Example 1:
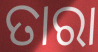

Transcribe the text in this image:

ତାରା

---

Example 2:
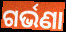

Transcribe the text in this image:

ଗର୍ଭଣା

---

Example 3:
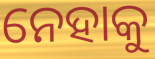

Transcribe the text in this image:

ନେହାକୁ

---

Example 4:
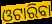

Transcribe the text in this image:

ଓଟାରିବା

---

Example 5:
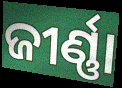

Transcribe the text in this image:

ଜୀର୍ଣ୍ଣା